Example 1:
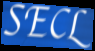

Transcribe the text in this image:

SECL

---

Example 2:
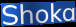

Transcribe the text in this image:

Shoka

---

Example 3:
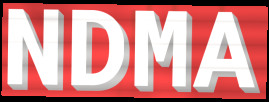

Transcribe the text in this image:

NDMA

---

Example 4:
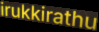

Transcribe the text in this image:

irukkirathu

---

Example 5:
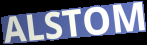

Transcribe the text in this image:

ALSTOM